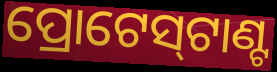
ପ୍ରୋଟେସ୍‌ଟାଣ୍ଟ